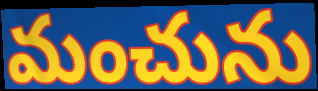
మంచును